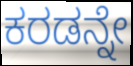
ಕರಡನ್ನೇ